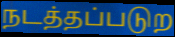
நடத்தப்படுற